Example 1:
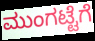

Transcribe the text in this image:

ಮುಂಗಟ್ಟೆಗೆ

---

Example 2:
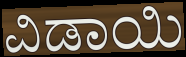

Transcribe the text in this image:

ವಿಡಾಯಿ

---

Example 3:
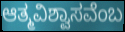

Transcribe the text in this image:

ಆತ್ಮವಿಶ್ವಾಸವೆಂಬ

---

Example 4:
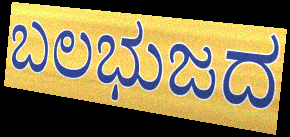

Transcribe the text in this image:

ಬಲಭುಜದ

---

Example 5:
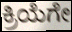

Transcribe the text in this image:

ಕ್ರಿಯೆಗೇ